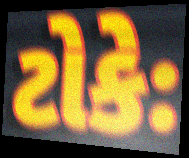
ટોકેઃ